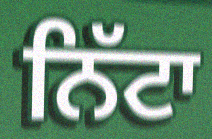
ਨਿੱਟਾ